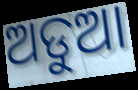
ଅଡୁଆ